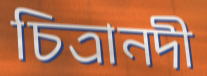
চিত্রানদী